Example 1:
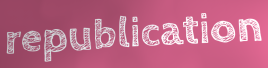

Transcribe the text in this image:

republication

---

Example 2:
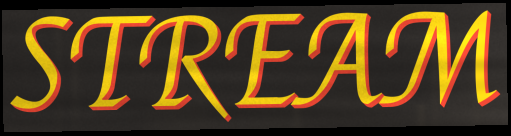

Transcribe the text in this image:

STREAM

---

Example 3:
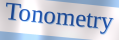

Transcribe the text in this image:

Tonometry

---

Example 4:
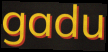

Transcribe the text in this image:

gadu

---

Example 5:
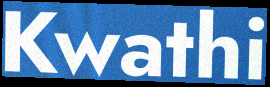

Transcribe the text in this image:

Kwathi